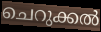
ചെറുക്കൽ